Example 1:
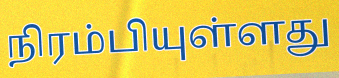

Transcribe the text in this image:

நிரம்பியுள்ளது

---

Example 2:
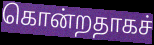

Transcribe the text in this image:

கொன்றதாகச்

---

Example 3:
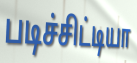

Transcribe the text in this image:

படிச்சிட்டியா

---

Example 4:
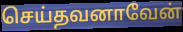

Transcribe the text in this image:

செய்தவனாவேன்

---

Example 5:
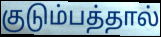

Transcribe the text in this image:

குடும்பத்தால்